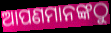
ଆପଣମାନଙ୍କଠୁ